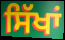
ਸਿੱਖਾਂ